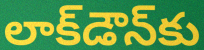
లాక్‌డౌన్‌కు